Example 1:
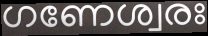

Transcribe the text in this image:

ഗണേശ്വരഃ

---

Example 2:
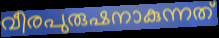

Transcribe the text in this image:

വീരപുരുഷനാകുന്നത്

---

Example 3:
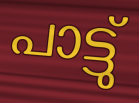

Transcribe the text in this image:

പാട്ടു്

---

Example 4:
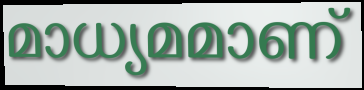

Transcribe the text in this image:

മാധ്യമമാണ്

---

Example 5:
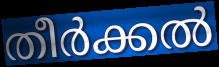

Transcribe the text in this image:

തീർക്കൽ